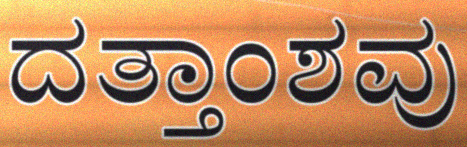
ದತ್ತಾಂಶವು